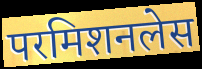
परमिशनलेस